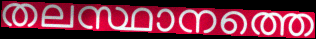
തലസ്ഥാനത്തെ